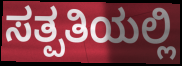
ಸತ್ಪತಿಯಲ್ಲಿ